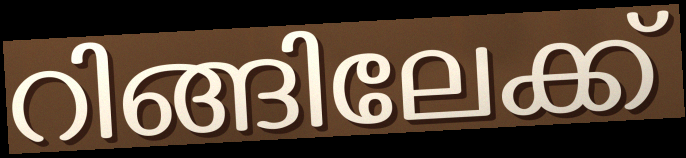
റിങ്ങിലേക്ക്